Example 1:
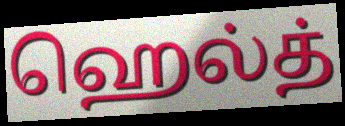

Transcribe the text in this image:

ஹெல்த்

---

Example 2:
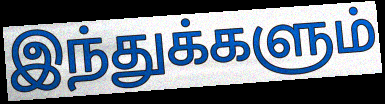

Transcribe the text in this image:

இந்துக்களும்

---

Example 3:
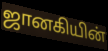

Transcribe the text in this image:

ஜானகியின்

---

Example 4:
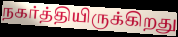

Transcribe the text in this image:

நகர்த்தியிருக்கிறது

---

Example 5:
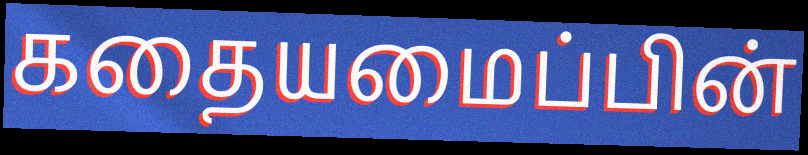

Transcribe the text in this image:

கதையமைப்பின்